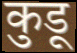
कुडू